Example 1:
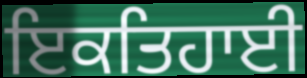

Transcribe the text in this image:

ਇਕਤਿਹਾਈ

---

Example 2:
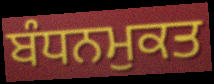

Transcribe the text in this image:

ਬੰਧਨਮੁਕਤ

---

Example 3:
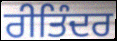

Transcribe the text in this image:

ਰੀਤਿੰਦਰ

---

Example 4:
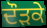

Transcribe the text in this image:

ਦੌੜਕੇ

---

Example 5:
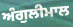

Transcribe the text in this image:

ਅੰਗੁਲੀਮਾਲ